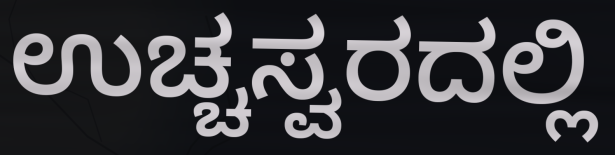
ಉಚ್ಚಸ್ವರದಲ್ಲಿ